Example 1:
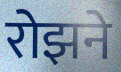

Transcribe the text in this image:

रोझने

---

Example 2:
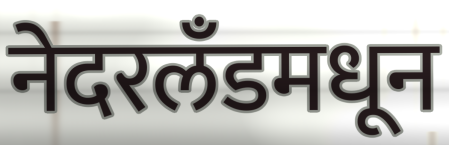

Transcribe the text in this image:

नेदरलँडमधून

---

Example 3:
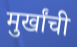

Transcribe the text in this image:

मुर्खांची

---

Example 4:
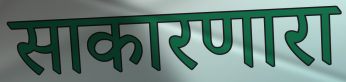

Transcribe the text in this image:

साकारणारा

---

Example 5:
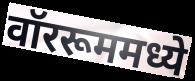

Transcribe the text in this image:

वॉररूममध्ये